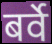
बर्वे